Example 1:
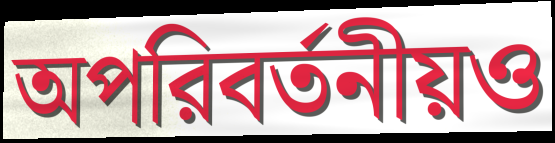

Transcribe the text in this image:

অপরিবর্তনীয়ও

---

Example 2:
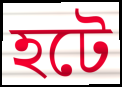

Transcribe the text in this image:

হটে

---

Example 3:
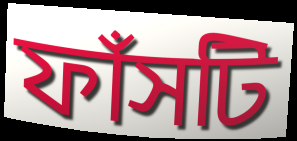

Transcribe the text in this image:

ফাঁসটি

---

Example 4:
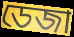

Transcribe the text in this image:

ডেজা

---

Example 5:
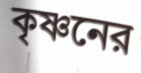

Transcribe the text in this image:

কৃষ্ণনের